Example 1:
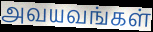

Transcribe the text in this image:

அவயவங்கள்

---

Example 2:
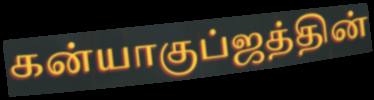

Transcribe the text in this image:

கன்யாகுப்ஜத்தின்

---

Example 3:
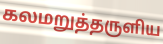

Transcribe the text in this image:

கலமறுத்தருளிய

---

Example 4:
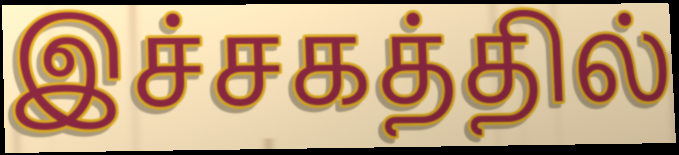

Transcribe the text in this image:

இச்சகத்தில்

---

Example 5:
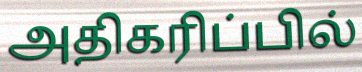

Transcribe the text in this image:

அதிகரிப்பில்